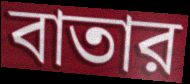
বাতার